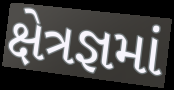
ક્ષેત્રજ્ઞમાં